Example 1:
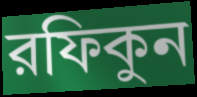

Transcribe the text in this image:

রফিকুন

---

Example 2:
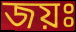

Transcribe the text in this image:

জয়ঃ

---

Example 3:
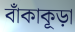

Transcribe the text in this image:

বাঁকাকূড়া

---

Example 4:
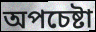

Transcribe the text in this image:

অপচেষ্টা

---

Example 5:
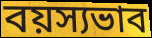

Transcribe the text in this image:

বয়স্যভাব